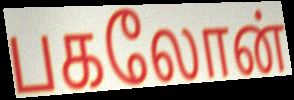
பகலோன்